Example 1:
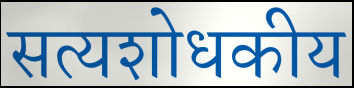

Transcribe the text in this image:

सत्यशोधकीय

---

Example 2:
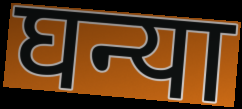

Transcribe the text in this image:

घन्या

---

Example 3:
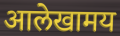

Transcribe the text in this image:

आलेखामय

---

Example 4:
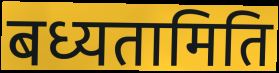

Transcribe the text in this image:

बध्यतामिति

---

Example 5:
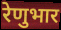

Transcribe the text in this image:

रेणुभार